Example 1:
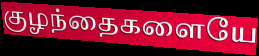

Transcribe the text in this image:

குழந்தைகளையே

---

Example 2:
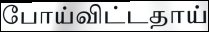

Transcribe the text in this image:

போய்விட்டதாய்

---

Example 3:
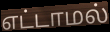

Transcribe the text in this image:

எட்டாமல்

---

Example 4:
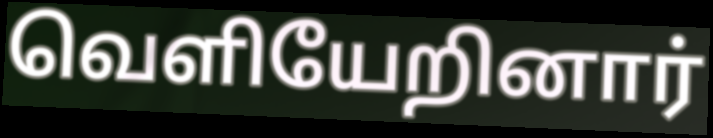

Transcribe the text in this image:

வெளியேறினார்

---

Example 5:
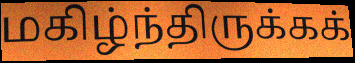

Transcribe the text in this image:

மகிழ்ந்திருக்கக்